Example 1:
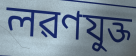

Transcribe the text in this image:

লৱণযুক্ত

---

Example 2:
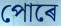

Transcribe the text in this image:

পোৰে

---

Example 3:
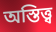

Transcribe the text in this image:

অস্তিত্ত্ব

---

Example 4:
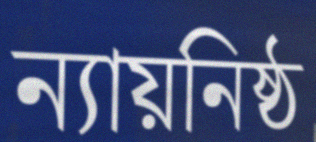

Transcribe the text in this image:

ন্যায়নিষ্ঠ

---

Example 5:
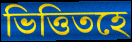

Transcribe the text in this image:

ভিত্তিতহে